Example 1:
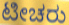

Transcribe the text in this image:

ಟೀಚರು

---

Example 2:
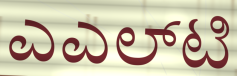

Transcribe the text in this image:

ಎಎಲ್‌ಟಿ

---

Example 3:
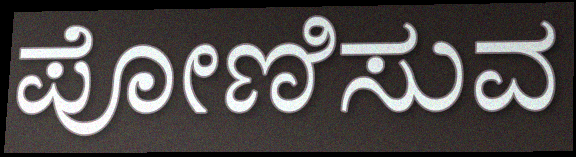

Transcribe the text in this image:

ಪೋಣಿಸುವ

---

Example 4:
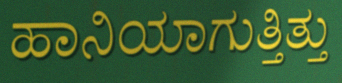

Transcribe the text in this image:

ಹಾನಿಯಾಗುತ್ತಿತ್ತು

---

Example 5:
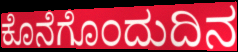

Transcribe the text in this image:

ಕೊನೆಗೊಂದುದಿನ